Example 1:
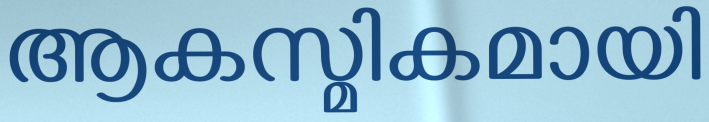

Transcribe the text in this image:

ആകസ്മികമായി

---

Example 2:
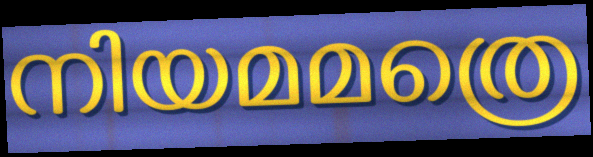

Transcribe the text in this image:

നിയമമത്രെ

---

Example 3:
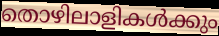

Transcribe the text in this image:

തൊഴിലാളികൾക്കും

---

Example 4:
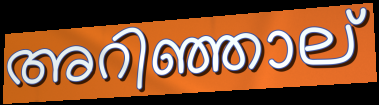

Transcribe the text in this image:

അറിഞ്ഞാല്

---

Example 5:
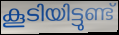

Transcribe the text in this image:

കൂടിയിട്ടുണ്ട്